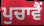
ਪੁਚਾਵੈਂ